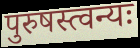
पुरुषस्त्वन्यः